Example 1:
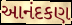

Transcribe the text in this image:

આનંદકણ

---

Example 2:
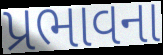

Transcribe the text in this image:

પ્રભાવના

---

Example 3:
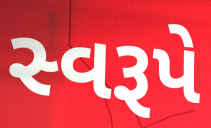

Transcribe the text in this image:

સ્વરૂપે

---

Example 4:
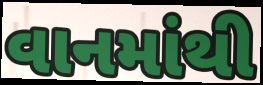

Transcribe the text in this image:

વાનમાંથી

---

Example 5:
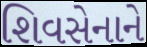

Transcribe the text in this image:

શિવસેનાને